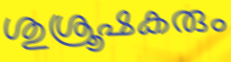
ശുശ്രൂഷകരും